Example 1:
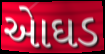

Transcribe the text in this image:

એાઘડ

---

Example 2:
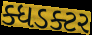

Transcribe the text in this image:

ક્ધડક્ટર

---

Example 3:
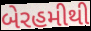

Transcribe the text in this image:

બેરહમીથી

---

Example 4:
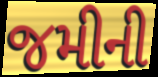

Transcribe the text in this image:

જમીની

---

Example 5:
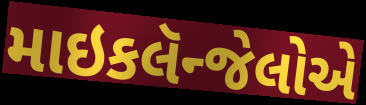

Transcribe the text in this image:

માઇકલૅન્જેલોએ